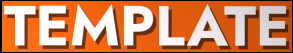
TEMPLATE